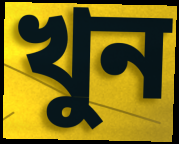
খুন